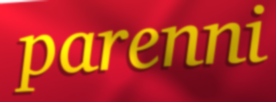
parenni